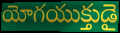
యోగయుక్తుడై